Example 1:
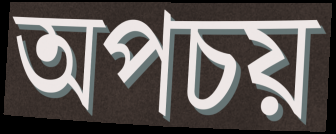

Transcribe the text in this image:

অপচয়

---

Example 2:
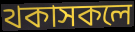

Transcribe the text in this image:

থকাসকলে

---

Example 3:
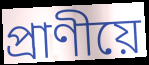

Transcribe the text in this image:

প্ৰাণীয়ে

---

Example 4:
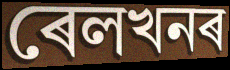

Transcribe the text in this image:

ৰেলখনৰ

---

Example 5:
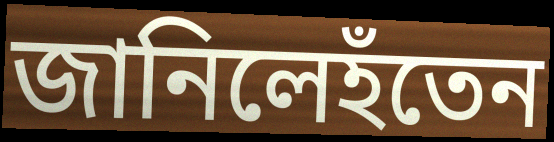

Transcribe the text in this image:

জানিলেহঁতেন